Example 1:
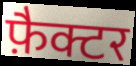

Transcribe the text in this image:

फ़ैक्टर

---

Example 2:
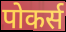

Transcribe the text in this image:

पोकर्स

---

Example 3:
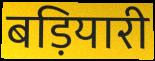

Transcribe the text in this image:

बड़ियारी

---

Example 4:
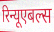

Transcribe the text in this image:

रिन्यूएबल्स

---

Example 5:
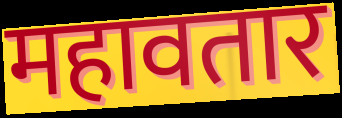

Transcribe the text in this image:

महावतार